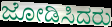
ಜೋಡಿಸಿದರು